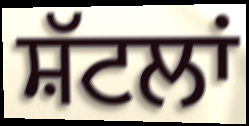
ਸ਼ੱਟਲਾਂ